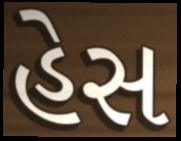
હેસ